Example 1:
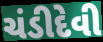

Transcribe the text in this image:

ચંડીદેવી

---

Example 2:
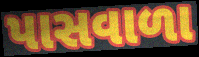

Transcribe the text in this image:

પાસવાળા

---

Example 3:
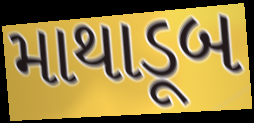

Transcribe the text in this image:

માથાડૂબ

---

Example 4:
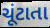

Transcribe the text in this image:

ચૂંટાતા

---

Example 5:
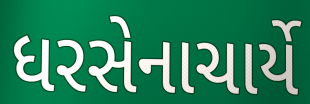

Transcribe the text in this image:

ધરસેનાચાર્યે